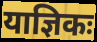
याज्ञिकः